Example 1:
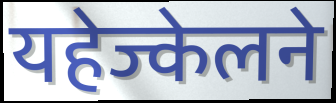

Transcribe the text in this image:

यहेज्केलने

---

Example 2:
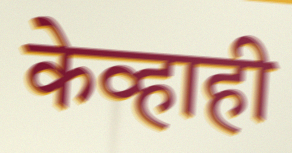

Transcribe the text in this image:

केव्हाही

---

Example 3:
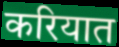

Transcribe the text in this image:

करियात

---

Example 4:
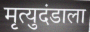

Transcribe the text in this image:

मृत्युदंडाला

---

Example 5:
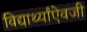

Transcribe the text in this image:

विद्यार्थ्यांऐवजी